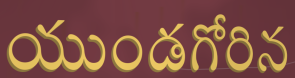
యుండగోరిన